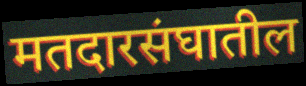
मतदारसंघातील